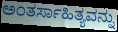
ಅಂತರ್ಸಾಹಿತ್ಯವನ್ನು